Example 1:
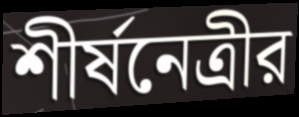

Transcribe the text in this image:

শীর্ষনেত্রীর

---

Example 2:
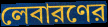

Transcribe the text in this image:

লেবারণের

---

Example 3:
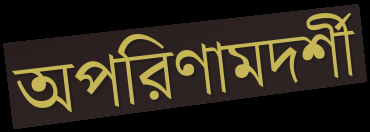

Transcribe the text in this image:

অপরিণামদর্শী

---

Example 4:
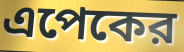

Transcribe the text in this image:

এপেকের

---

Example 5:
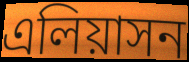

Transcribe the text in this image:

এলিয়াসন